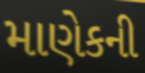
માણેકની